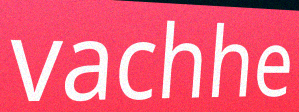
vachhe